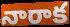
నారాక